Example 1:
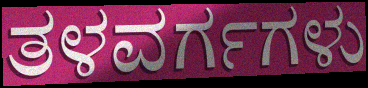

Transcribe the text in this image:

ತಳವರ್ಗಗಳು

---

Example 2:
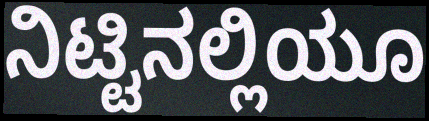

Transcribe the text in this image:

ನಿಟ್ಟಿನಲ್ಲಿಯೂ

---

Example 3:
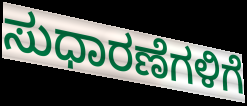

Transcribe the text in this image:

ಸುಧಾರಣೆಗಳಿಗೆ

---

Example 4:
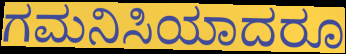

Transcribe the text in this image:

ಗಮನಿಸಿಯಾದರೂ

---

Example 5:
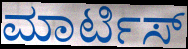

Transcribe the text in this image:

ಮಾರ್ಟಿಸ್